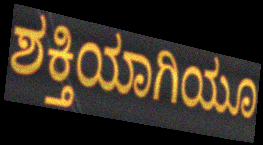
ಶಕ್ತಿಯಾಗಿಯೂ